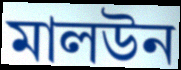
মালউন